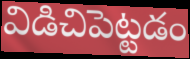
విడిచిపెట్టడం